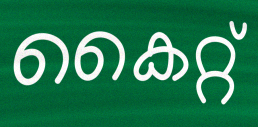
കൈറ്റ്